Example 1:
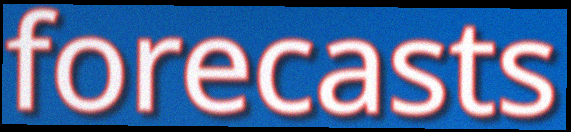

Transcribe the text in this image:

forecasts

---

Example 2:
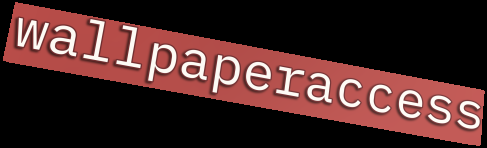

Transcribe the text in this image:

wallpaperaccess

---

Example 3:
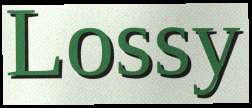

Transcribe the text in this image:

Lossy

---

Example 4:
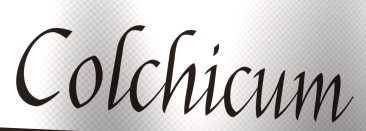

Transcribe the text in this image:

Colchicum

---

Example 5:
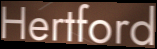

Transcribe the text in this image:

Hertford